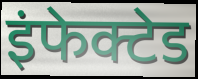
इंफेक्टेड